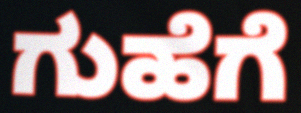
ಗುಹೆಗೆ